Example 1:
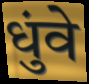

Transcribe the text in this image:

धुंवे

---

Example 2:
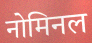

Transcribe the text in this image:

नोमिनल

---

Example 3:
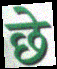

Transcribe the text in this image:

छे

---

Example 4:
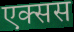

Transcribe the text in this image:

एक्सस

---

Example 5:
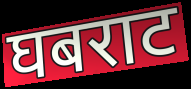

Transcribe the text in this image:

घबराट